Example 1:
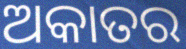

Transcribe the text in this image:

ଅକାତର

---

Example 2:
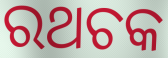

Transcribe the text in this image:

ରଥଚକ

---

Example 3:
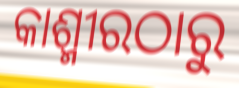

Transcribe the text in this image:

କାଶ୍ମୀରଠାରୁ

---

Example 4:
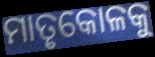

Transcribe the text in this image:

ମାତୃକୋଳକୁ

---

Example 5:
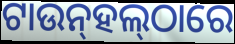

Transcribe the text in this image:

ଟାଉନ୍‌ହଲ୍‌ଠାରେ